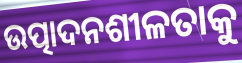
ଉତ୍ପାଦନଶୀଳତାକୁ